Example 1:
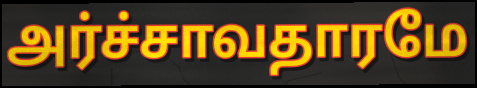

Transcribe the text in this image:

அர்ச்சாவதாரமே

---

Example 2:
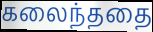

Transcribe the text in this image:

கலைந்ததை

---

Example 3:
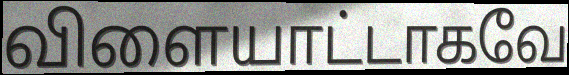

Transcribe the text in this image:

விளையாட்டாகவே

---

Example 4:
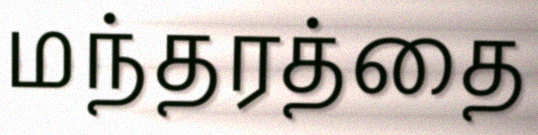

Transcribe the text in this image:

மந்தரத்தை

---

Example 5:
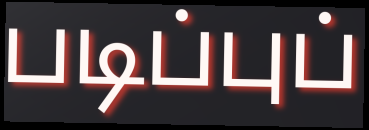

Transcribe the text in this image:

படிப்புப்